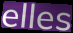
elles